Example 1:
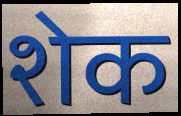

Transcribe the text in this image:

शेक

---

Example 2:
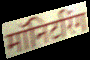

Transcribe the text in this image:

मॉनिटरिंग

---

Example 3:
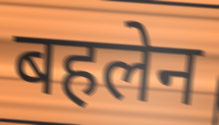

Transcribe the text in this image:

बहलेन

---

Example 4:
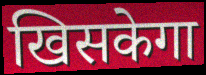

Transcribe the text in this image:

खिसकेगा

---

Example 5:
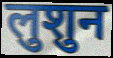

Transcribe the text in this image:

लुशुन